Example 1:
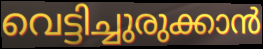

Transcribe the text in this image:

വെട്ടിച്ചുരുക്കാൻ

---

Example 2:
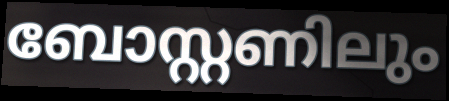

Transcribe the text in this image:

ബോസ്റ്റണിലും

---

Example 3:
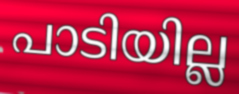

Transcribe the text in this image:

പാടിയില്ല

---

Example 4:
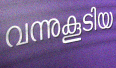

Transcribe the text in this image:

വന്നുകൂടിയ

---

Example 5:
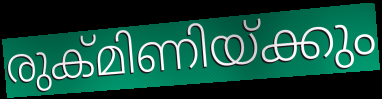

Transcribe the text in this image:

രുക്മിണിയ്ക്കും